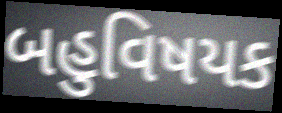
બહુવિષયક